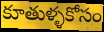
కూతుళ్ళకోసం